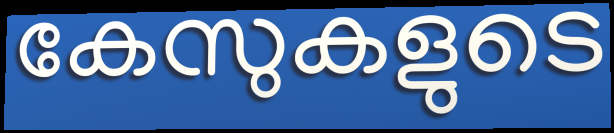
കേസുകളുടെ